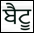
ਬੈਟੂ